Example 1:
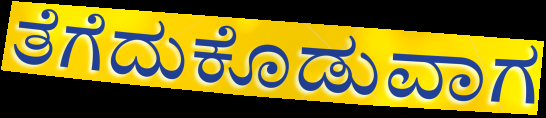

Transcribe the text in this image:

ತೆಗೆದುಕೊಡುವಾಗ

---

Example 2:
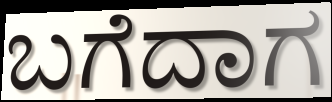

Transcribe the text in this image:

ಬಗೆದಾಗ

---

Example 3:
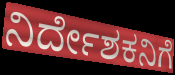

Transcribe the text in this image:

ನಿರ್ದೇಶಕನಿಗೆ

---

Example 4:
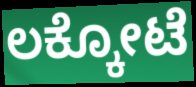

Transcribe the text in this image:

ಲಕ್ಕೋಟೆ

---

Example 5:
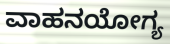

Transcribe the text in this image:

ವಾಹನಯೋಗ್ಯ